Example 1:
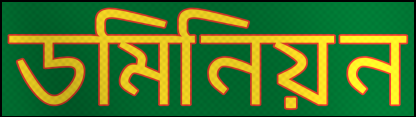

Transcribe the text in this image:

ডমিনিয়ন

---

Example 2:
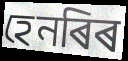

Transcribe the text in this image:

হেনৰিৰ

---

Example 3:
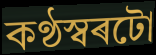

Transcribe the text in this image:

কণ্ঠস্বৰটো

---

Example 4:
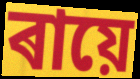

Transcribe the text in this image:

ৰায়ে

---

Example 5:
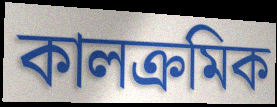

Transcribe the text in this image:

কালক্ৰমিক